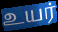
உயர்